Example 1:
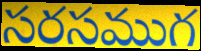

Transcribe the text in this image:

సరసముగ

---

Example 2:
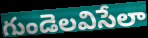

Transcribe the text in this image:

గుండెలవిసేలా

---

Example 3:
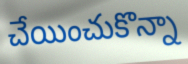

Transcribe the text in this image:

చేయించుకొన్నా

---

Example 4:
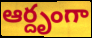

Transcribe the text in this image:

ఆర్దృంగా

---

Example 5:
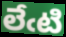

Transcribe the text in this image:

లేఁటి